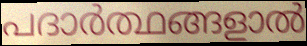
പദാർത്ഥങ്ങളാൽ